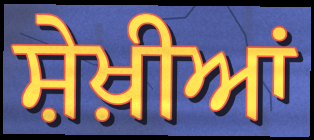
ਸ਼ੇਖ਼ੀਆਂ